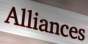
Alliances